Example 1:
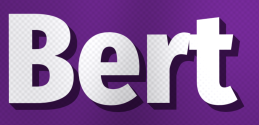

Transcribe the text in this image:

Bert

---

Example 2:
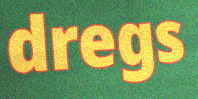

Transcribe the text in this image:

dregs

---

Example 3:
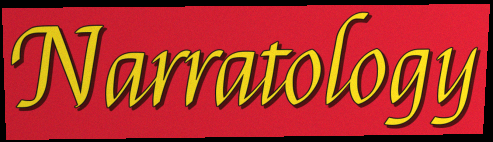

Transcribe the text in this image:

Narratology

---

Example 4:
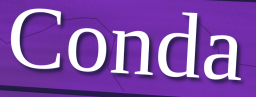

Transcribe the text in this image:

Conda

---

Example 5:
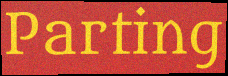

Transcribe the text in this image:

Parting